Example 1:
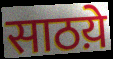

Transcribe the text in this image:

साठय़े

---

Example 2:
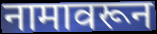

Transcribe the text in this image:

नामावरून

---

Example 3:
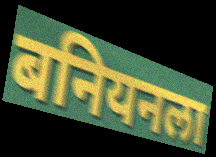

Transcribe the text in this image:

बनियनला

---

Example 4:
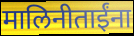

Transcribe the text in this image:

मालिनीताईंना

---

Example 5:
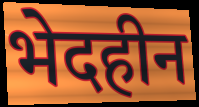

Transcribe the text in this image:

भेदहीन